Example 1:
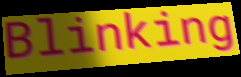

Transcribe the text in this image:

Blinking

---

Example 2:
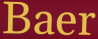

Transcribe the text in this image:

Baer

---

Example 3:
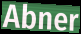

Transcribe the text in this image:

Abner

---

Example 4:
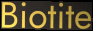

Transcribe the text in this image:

Biotite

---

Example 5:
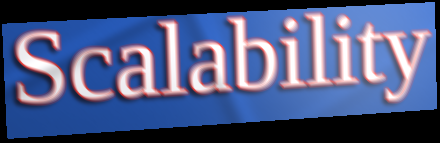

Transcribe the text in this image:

Scalability